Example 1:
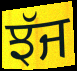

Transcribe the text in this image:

ਝੱਜ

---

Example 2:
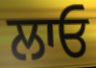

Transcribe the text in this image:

ਲਾਓ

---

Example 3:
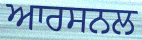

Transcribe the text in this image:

ਆਰਸਨਲ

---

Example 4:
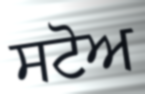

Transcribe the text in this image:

ਸਟੋਅ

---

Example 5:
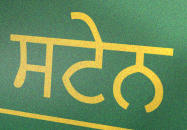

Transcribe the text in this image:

ਸਟੇਨ